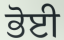
ਭੋਈ